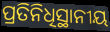
ପ୍ରତିନିଧିସ୍ଥାନୀୟ